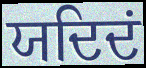
ਯਦਿਦਂ